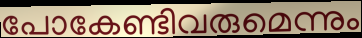
പോകേണ്ടിവരുമെന്നും